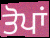
ਤੋਪਾਂ